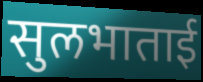
सुलभाताई